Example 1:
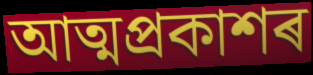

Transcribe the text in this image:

আত্মপ্ৰকাশৰ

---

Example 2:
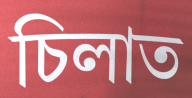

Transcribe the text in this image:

চিলাত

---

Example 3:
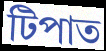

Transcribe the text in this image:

টিপাত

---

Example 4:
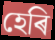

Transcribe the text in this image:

হেৰি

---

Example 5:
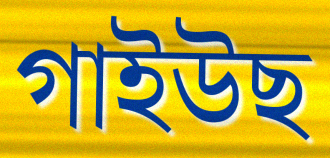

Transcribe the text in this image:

গাইউছ